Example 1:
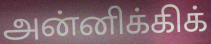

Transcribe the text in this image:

அன்னிக்கிக்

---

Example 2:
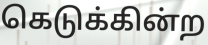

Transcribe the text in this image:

கெடுக்கின்ற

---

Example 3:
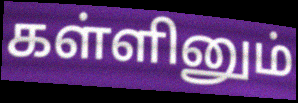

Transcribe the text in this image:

கள்ளினும்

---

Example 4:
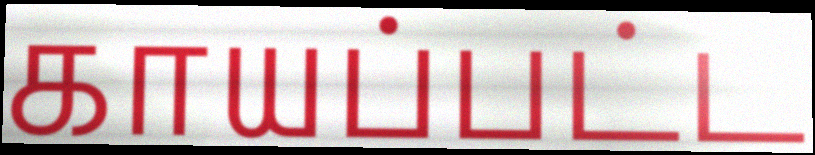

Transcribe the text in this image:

காயப்பட்ட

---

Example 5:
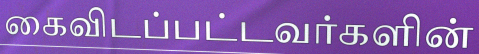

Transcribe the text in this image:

கைவிடப்பட்டவர்களின்